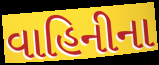
વાહિનીના